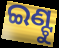
ଇଣ୍ଟୁ